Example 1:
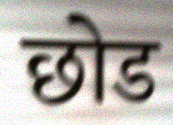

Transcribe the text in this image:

छोड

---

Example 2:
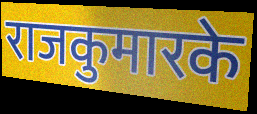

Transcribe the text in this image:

राजकुमारके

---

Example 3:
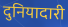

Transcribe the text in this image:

दुनियादारी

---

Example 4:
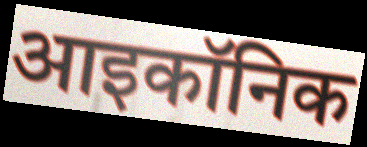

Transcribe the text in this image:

आइकॉनिक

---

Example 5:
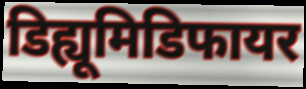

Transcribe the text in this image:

डिह्यूमिडिफायर